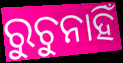
ରୁଚୁନାହିଁ